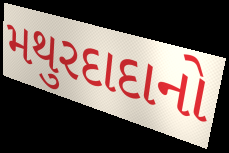
મથુરદાદાનો